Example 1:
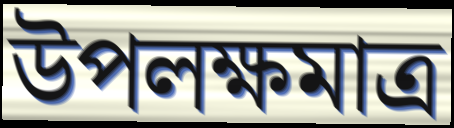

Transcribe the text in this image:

উপলক্ষমাত্র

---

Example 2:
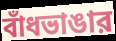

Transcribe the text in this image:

বাঁধভাঙার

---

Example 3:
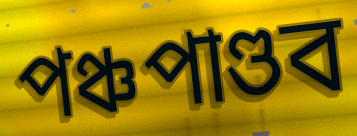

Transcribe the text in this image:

পঞ্চপাণ্ডব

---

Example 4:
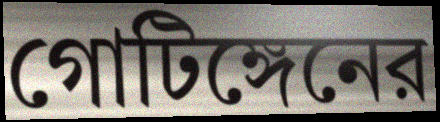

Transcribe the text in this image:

গোটিঙ্গেনের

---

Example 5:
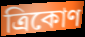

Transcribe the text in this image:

ত্রিকোণ